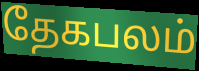
தேகபலம்